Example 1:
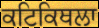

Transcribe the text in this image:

ਕਟਿਕਿਥਲਾ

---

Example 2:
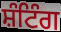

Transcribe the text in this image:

ਸ਼ੰਟਿੰਗ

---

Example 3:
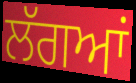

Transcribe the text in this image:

ਲੱਗਆਂ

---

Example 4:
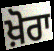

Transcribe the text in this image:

ਖ਼ੋਰਾ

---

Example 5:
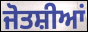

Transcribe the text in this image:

ਜੋਤਸ਼ੀਆਂ